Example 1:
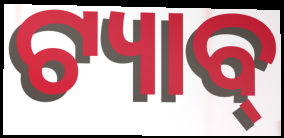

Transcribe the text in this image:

ଟ୍ୟାବ୍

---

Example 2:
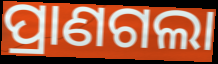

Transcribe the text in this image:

ପ୍ରାଣଗଲା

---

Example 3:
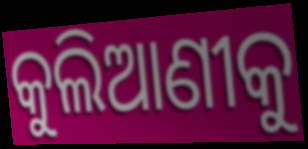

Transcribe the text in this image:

କୁଲିଆଣୀକୁ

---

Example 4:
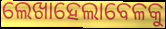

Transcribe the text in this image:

ଲେଖାହେଲାବେଳକୁ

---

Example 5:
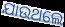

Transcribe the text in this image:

ଯାଉଥଲେ